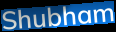
Shubham